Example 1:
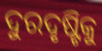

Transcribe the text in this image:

ଦୁରଦୃଷ୍ଟିକୁ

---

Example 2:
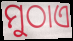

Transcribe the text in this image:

ମୁଠାଏ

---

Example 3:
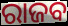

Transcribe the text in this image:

ରାଜବ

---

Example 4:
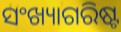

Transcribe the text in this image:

ସଂଖ୍ୟାଗରିଷ୍ଟ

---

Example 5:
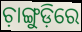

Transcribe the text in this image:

ଚ଼ାଙ୍ଗୁଡ଼ିରେ